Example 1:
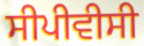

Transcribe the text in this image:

ਸੀਪੀਵੀਸੀ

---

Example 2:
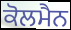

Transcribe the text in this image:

ਕੋਲਮੈਨ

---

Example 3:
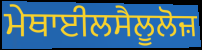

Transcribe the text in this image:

ਮੇਥਾਈਲਸੈਲੂਲੋਜ਼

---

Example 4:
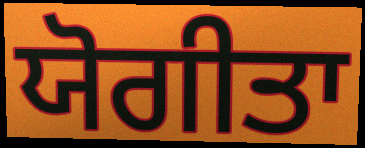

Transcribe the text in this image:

ਯੋਗੀਤਾ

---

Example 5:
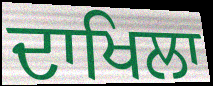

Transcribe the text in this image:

ਦਾਖਿਲਾ